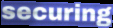
securing